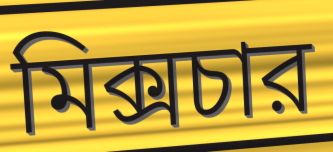
মিক্সচার